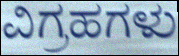
ವಿಗ್ರಹಗಳು